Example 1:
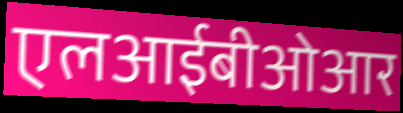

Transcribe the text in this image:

एलआईबीओआर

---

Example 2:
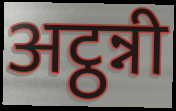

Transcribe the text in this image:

अट्ठन्नी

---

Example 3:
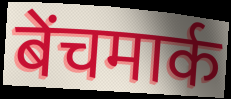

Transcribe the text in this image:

बेंचमार्क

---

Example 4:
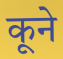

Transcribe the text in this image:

कूने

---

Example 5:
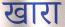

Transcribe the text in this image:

खारा